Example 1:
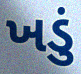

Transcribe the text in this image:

ખડું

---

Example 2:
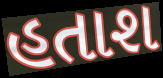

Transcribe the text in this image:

હતાશ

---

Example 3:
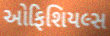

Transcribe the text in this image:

ઓફિશિયલ્સ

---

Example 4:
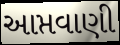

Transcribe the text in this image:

આપ્તવાણી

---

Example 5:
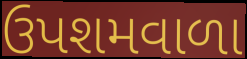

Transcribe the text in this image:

ઉપશમવાળા